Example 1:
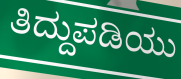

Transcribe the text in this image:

ತಿದ್ದುಪಡಿಯು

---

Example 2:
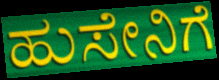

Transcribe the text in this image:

ಹುಸೇನಿಗೆ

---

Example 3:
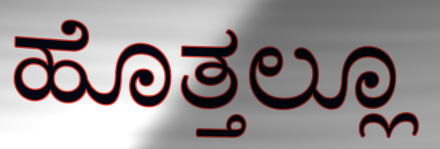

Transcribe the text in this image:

ಹೊತ್ತಲ್ಲೂ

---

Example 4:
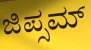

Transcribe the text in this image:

ಜಿಪ್ಸಮ್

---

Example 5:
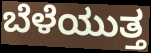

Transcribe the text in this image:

ಬೆಳೆಯುತ್ತ